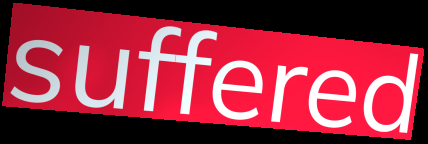
suffered